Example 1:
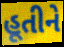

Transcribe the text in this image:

હૂતીને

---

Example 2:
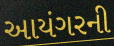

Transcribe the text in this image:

આયંગરની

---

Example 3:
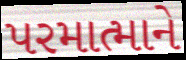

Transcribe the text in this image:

પરમાત્માને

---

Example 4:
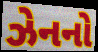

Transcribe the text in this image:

ઝેનનો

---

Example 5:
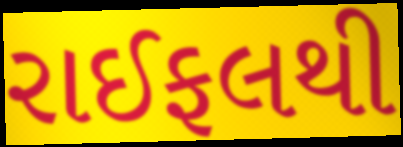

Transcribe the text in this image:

રાઈફલથી